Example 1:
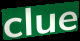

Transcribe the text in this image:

clue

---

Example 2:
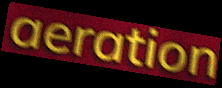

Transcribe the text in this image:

aeration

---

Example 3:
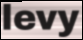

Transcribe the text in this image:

levy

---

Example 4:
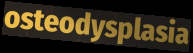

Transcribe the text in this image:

osteodysplasia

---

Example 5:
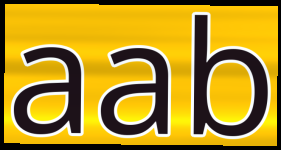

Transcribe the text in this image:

aab